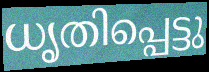
ധൃതിപ്പെട്ടു